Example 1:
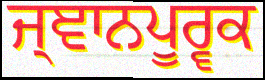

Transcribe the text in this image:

ਜ੍ਞਾਨਪੂਰ੍ਵਕ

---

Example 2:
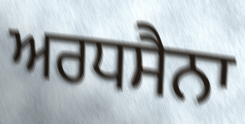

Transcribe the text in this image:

ਅਰਧਸੈਨਾ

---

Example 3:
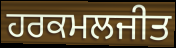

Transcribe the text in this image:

ਹਰਕਮਲਜੀਤ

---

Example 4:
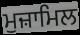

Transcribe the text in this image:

ਮੁਜ਼ਾਮਿਲ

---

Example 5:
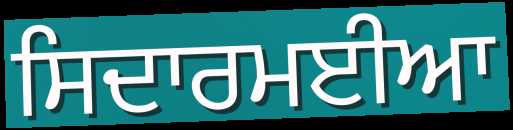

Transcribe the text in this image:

ਸਿਦਾਰਮਈਆ